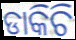
ଡାକିଚି